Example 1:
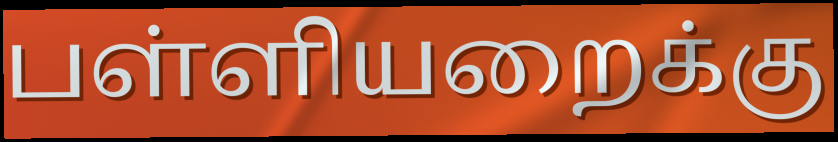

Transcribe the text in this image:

பள்ளியறைக்கு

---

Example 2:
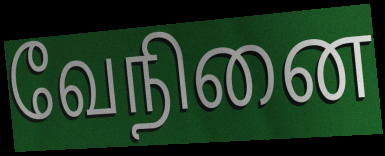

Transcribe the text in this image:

வேநினை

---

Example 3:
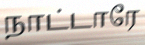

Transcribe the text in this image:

நாட்டாரே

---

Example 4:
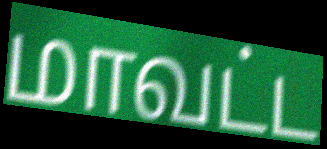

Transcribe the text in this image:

மாவட்ட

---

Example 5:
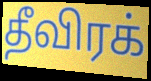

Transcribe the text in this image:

தீவிரக்